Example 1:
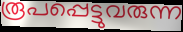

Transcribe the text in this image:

രൂപപ്പെട്ടുവരുന്ന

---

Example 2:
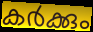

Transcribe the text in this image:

കർക്കും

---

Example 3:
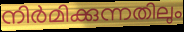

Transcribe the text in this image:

നിർമിക്കുന്നതിലും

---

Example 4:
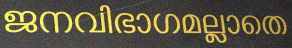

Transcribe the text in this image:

ജനവിഭാഗമല്ലാതെ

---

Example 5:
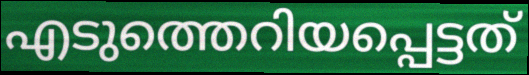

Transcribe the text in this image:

എടുത്തെറിയപ്പെട്ടത്